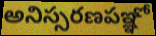
అనిస్సరణపఞ్ఞో